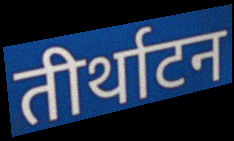
तीर्थाटन